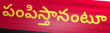
పంపిస్తానంటూ